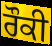
ਰੌਕੀ